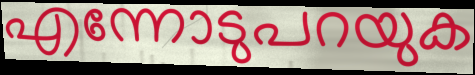
എന്നോടുപറയുക